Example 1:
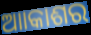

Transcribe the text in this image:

ଆାକାଶର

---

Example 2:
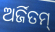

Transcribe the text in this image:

ଅର୍ଜିତମ୍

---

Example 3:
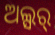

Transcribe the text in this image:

ଅଲ୍ସର୍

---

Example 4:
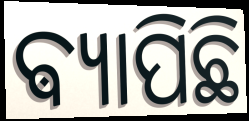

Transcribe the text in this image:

ଵ୍ୟାପିଛି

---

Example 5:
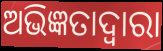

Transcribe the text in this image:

ଅଭିଜ୍ଞତାଦ୍ଵାରା